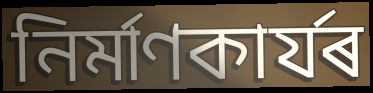
নিৰ্মাণকাৰ্যৰ